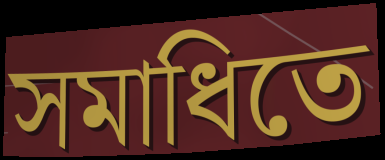
সমাধিতে